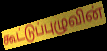
கூட்டுப்புழுவின்